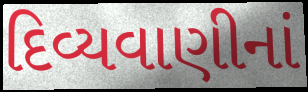
દિવ્યવાણીનાં